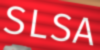
SLSA